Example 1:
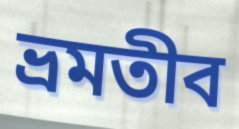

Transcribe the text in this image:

ভ্রমতীব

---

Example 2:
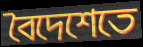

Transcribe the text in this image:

বৈদেশেতে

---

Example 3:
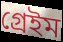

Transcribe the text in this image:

গ্রেইম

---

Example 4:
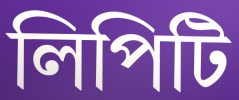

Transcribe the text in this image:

লিপিটি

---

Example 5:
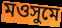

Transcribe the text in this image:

মওসুমে